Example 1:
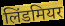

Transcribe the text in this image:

लिंडमियर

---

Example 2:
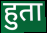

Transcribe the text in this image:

हुता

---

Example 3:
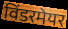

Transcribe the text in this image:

विंडरमेयर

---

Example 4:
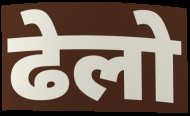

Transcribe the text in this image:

ढेलो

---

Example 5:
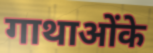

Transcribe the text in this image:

गाथाओंके